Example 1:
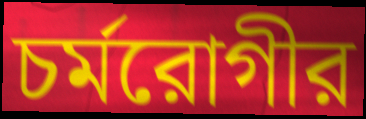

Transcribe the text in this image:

চর্মরোগীর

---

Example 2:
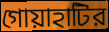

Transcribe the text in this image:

গোয়াহাটির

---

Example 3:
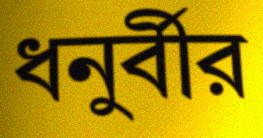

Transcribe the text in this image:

ধনুর্বীর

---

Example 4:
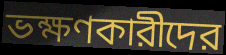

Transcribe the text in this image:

ভক্ষণকারীদের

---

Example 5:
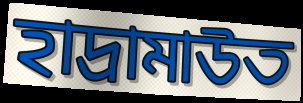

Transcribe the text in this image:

হাদ্রামাউত